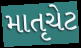
માતૃચેટ